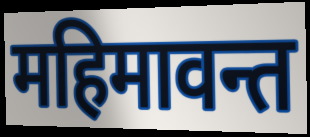
महिमावन्त